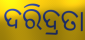
ଦରିଦ୍ରତା